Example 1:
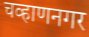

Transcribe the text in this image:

चव्हाणनगर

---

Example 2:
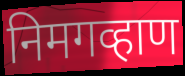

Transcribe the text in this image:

निमगव्हाण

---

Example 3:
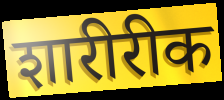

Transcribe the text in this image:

शारीरीक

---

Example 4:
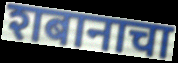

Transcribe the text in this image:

शबानाचा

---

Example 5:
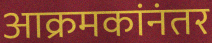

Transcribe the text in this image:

आक्रमकांनंतर